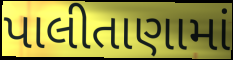
પાલીતાણામાં